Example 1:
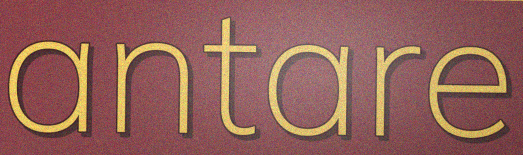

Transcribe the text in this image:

antare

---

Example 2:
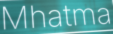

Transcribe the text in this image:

Mhatma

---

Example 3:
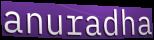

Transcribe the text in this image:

anuradha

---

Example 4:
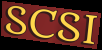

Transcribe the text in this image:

SCSI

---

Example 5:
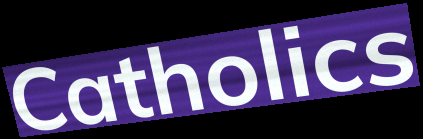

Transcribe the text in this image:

Catholics